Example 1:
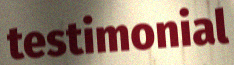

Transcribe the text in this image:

testimonial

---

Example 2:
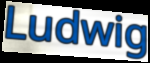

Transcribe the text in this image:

Ludwig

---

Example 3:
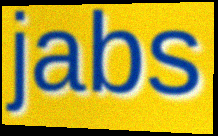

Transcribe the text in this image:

jabs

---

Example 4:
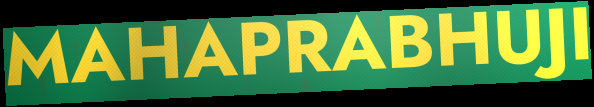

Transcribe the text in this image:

MAHAPRABHUJI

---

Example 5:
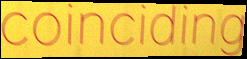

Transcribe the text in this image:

coinciding